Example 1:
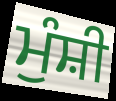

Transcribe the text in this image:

ਮੁੰਸ਼ੀ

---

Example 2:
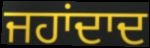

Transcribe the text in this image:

ਜਹਾਂਦਾਦ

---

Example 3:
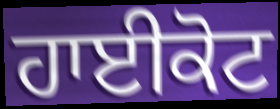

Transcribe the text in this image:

ਹਾਈਕੋਟ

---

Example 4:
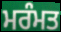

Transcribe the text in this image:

ਮਰੰਮਤ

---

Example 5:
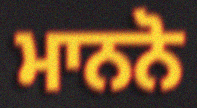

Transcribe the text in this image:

ਮਾਨਨੋ